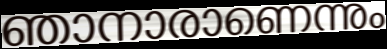
ഞാനാരാണെന്നും